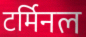
टर्मिनल